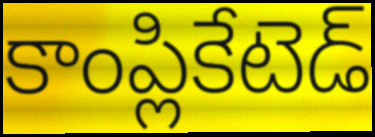
కాంప్లికేటెడ్